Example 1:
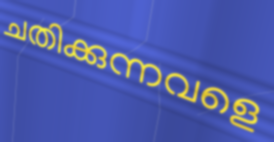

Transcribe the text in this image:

ചതിക്കുന്നവളെ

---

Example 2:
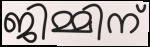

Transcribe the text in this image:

ജിമ്മിന്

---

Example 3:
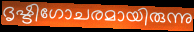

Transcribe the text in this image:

ദൃഷ്ടിഗോചരമായിരുന്നു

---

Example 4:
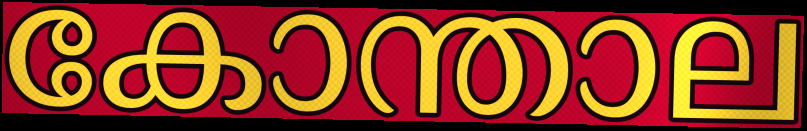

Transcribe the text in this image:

കോന്താല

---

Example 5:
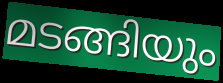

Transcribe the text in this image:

മടങ്ങിയും